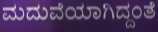
ಮದುವೆಯಾಗಿದ್ದಂತೆ